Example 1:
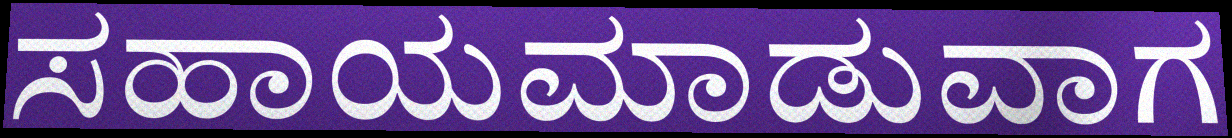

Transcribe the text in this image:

ಸಹಾಯಮಾಡುವಾಗ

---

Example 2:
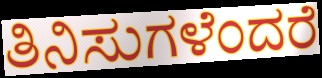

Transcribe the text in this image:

ತಿನಿಸುಗಳೆಂದರೆ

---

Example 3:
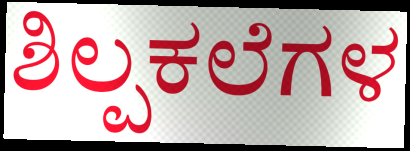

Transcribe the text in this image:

ಶಿಲ್ಪಕಲೆಗಳ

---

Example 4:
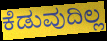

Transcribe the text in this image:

ಕೆಡುವುದಿಲ್ಲ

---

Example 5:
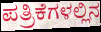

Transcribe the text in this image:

ಪತ್ರಿಕೆಗಳಲ್ಲಿನ